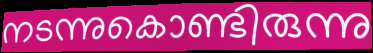
നടന്നുകൊണ്ടിരുന്നു